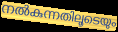
നൽകുന്നതിലൂടെയും